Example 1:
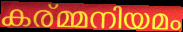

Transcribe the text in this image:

കര്മ്മനിയമം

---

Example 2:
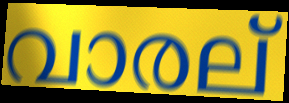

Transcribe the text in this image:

വാരല്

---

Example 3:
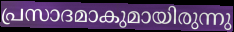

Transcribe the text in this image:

പ്രസാദമാകുമായിരുന്നു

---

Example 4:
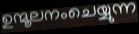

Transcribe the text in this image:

ഉന്മൂലനംചെയ്യുന്ന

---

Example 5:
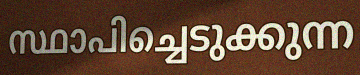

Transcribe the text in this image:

സ്ഥാപിച്ചെടുക്കുന്ന